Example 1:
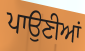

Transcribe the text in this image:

ਪਾਉਣੀਆਂ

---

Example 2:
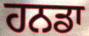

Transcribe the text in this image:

ਹਨਡਾ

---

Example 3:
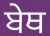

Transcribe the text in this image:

ਬੇਥ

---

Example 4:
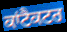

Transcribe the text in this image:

ਕਾਂਟੈਕਟਰ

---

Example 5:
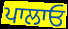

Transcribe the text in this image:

ਪਾਲਾਓ